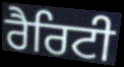
ਰੈਰਿਟੀ